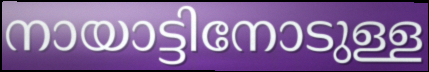
നായാട്ടിനോടുള്ള